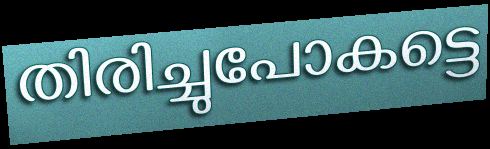
തിരിച്ചുപോകട്ടെ